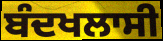
ਬੰਦਖਲਾਸੀ